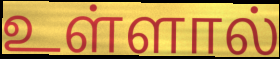
உள்ளால்